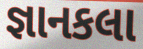
જ્ઞાનકલા